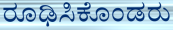
ರೂಢಿಸಿಕೊಂಡರು